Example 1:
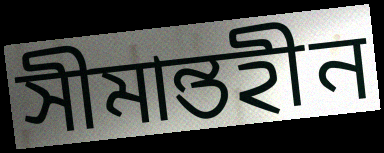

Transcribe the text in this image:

সীমান্তহীন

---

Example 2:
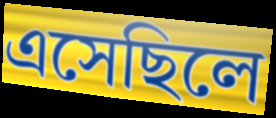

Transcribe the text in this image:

এসেছিলে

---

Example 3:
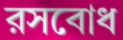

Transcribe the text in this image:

রসবোধ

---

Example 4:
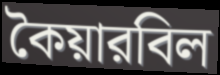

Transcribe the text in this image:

কৈয়ারবিল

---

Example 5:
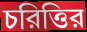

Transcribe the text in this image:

চরিত্তির